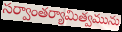
సర్వాంతర్యామిత్వమును